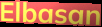
Elbasan